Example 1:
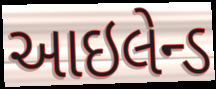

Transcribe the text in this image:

આઇલેન્ડ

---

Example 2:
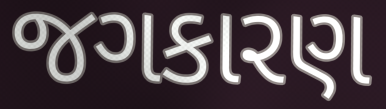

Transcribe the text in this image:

જગકારણ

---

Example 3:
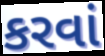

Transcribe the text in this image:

કરવાં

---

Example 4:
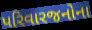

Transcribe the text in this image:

પરિવારજનોના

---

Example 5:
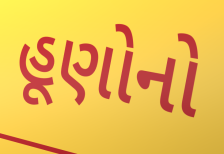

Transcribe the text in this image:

હૂણોનો